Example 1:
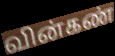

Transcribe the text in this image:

வின்கண்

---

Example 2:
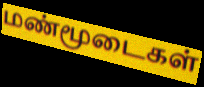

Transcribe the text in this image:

மண்மூடைகள்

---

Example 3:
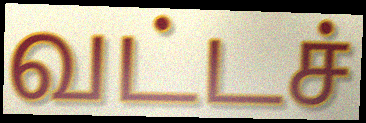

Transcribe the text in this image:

வட்டச்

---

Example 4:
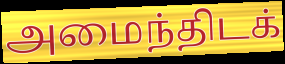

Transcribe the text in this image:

அமைந்திடக்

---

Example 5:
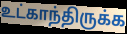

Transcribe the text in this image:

உட்காந்திருக்க